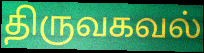
திருவகவல்